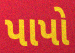
પાપો